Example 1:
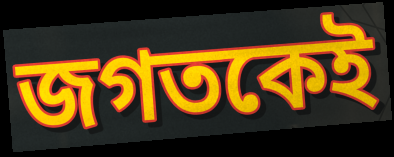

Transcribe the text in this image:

জগতকেই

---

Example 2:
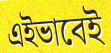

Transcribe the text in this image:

এইভাবেই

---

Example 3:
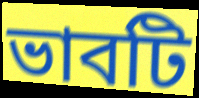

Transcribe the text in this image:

ভাবটি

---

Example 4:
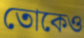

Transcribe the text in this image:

তোকেও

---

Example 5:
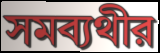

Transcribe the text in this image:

সমব্যথীর